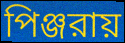
পিঞ্জরায়